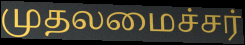
முதலமைச்சர்